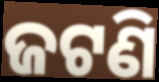
ଜଟଣି